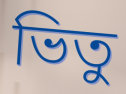
ভিতু